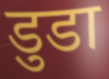
डुडा